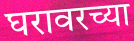
घरावरच्या